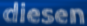
diesen